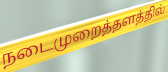
நடைமுறைத்தளத்தில்